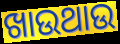
ଖାଉଥାଉ